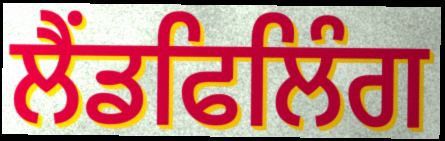
ਲੈਂਡਫਿਲਿੰਗ